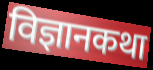
विज्ञानकथा